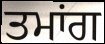
ਤਮਾਂਗ